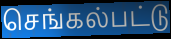
செங்கல்பட்டு